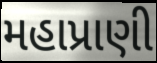
મહાપ્રાણી